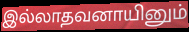
இல்லாதவனாயினும்